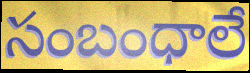
సంబంధాలే